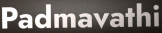
Padmavathi